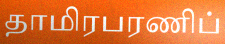
தாமிரபரணிப்